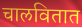
चालवितात